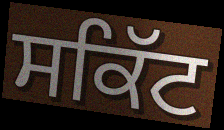
ਸਕਿੱਟ